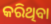
କରିଥିବା